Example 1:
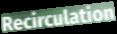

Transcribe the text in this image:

Recirculation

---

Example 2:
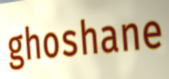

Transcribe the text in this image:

ghoshane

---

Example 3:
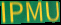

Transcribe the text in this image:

IPMU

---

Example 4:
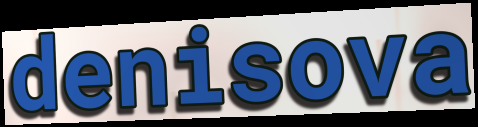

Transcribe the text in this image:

denisova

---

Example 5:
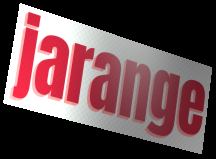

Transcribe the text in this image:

jarange